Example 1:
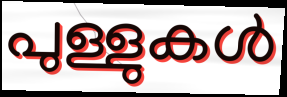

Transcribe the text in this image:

പുള്ളുകൾ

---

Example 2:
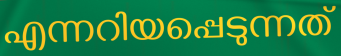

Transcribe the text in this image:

എന്നറിയപ്പെടുന്നത്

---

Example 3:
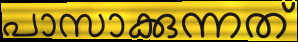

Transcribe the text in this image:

പാസാക്കുന്നത്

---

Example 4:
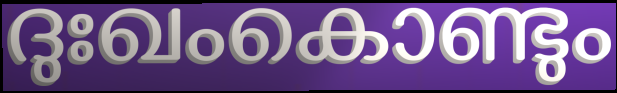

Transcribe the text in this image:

ദുഃഖംകൊണ്ടും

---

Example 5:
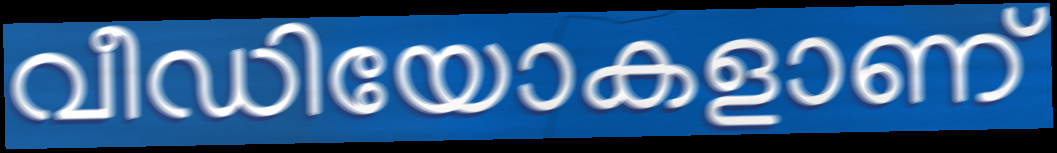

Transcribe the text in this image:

വീഡിയോകളാണ്